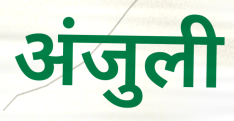
अंजुली